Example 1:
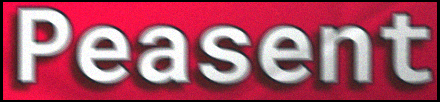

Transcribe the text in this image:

Peasent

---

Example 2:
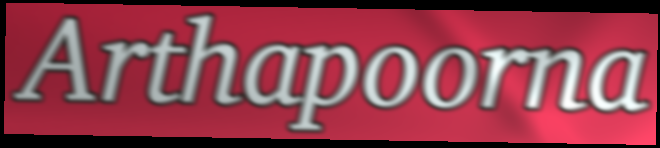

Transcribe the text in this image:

Arthapoorna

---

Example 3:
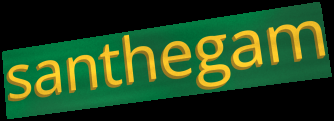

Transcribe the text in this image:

santhegam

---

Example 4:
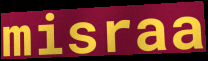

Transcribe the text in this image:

misraa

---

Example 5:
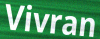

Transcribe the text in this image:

Vivran